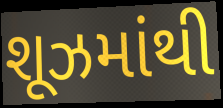
શૂઝમાંથી